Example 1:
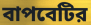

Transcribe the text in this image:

বাপবেটির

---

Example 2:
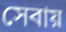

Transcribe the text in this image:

সেবায়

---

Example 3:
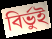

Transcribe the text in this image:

বির্ভুই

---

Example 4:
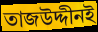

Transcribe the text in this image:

তাজউদ্দীনই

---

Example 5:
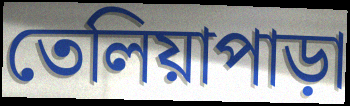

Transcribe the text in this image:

তেলিয়াপাড়া